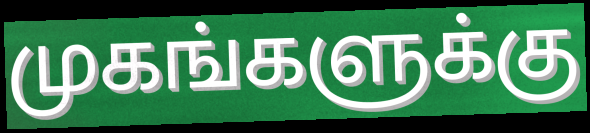
முகங்களுக்கு